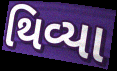
થિવ્યા